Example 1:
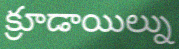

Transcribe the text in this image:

క్రూడాయిల్ను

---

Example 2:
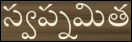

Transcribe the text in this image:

స్వప్నమిత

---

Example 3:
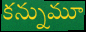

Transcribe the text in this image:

కన్నుమూ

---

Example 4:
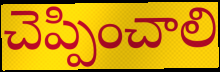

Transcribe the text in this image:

చెప్పించాలి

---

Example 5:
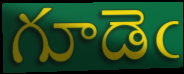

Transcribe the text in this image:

గూడెఁ